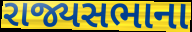
રાજ્યસભાના